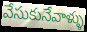
వేసుకునేవాళ్ళు